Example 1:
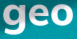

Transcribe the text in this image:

geo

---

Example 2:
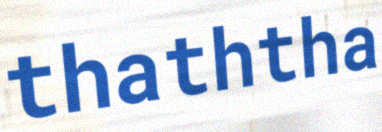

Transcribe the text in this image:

thaththa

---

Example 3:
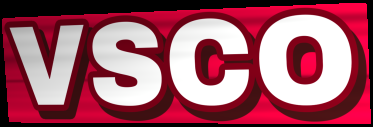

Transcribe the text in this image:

VSCO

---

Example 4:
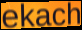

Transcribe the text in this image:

ekach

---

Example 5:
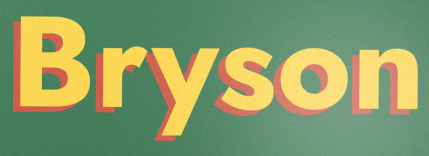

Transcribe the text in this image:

Bryson